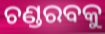
ଚଣ୍ଡରବକୁ